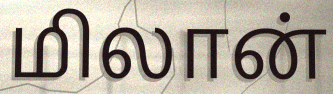
மிலான்